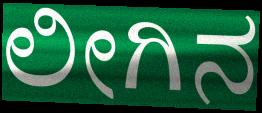
ಲೀಗಿನ